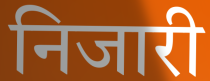
निजारी